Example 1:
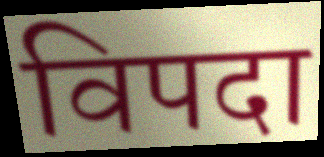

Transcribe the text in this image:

विपदा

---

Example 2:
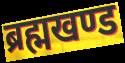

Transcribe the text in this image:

ब्रह्मखण्ड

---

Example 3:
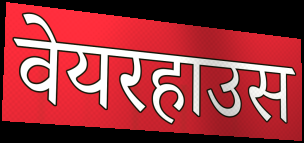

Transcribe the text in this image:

वेयरहाउस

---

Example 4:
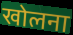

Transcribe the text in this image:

खोलना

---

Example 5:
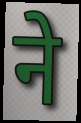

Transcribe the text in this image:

ने